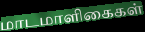
மாடமாளிகைகள்